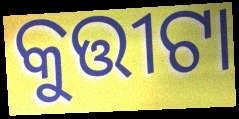
କୁତ୍ତୀଟା